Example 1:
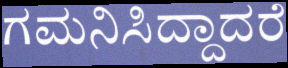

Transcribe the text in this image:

ಗಮನಿಸಿದ್ದಾದರೆ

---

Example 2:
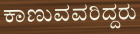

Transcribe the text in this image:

ಕಾಣುವವರಿದ್ದರು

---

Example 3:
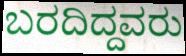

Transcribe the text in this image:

ಬರದಿದ್ದವರು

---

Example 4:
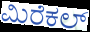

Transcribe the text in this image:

ಮಿರೆಕಲ್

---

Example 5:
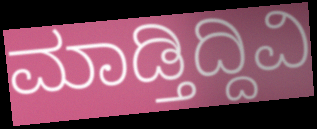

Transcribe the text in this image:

ಮಾಡ್ತಿದ್ದಿವಿ